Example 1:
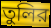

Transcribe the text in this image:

তুলির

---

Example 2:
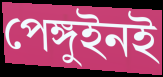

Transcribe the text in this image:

পেঙ্গুইনই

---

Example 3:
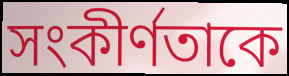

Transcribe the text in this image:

সংকীর্ণতাকে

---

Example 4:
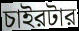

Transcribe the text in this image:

চাইরটার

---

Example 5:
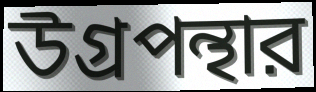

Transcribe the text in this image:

উগ্রপন্থার